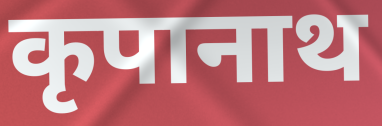
कृपानाथ